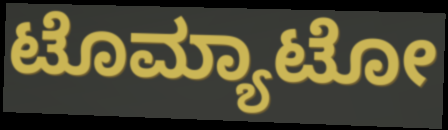
ಟೊಮ್ಯಾಟೋ